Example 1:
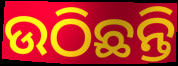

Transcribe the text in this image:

ଉଠିଛନ୍ତି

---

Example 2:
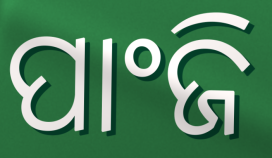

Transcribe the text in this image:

ପାଂଜି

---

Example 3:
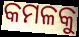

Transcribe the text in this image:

କମଳକୁ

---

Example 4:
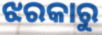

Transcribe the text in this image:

ଝରକାରୁ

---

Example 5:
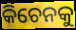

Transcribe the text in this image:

କିଚେନକୁ